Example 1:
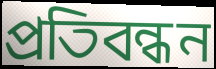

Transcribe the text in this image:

প্ৰতিবন্ধন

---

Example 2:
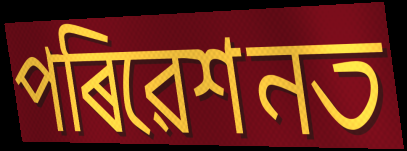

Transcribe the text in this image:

পৰিৱেশনত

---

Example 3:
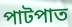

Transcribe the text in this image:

পাটপাত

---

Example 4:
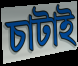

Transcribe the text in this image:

চাটাই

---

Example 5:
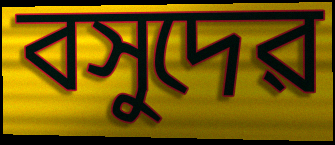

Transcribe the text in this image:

বসুদেৱ